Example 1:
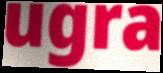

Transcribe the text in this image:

ugra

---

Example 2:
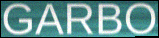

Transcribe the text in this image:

GARBO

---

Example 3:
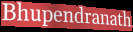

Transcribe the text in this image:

Bhupendranath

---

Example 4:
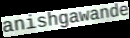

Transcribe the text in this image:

anishgawande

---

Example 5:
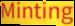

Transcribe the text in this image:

Minting